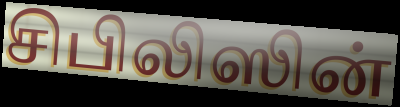
சிபிலிஸின்